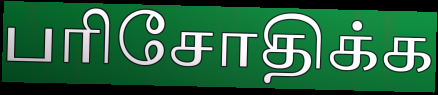
பரிசோதிக்க